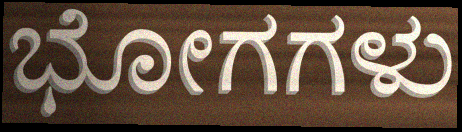
ಭೋಗಗಳು